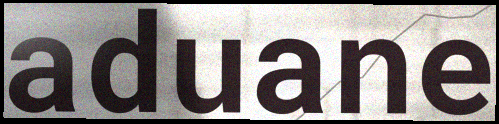
aduane